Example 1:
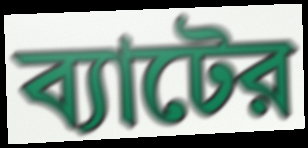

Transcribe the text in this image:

ব্যাটের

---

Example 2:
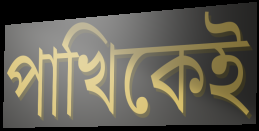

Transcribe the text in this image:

পাখিকেই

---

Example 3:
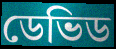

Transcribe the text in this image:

ডেভিড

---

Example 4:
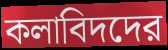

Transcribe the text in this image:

কলাবিদদের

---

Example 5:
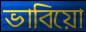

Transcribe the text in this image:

ভাবিয়ো